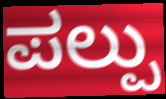
ಪಲ್ಪು